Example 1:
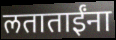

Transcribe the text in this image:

लताताईंना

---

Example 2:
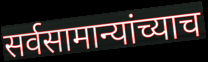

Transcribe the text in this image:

सर्वसामान्यांच्याच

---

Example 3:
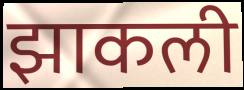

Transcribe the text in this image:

झाकली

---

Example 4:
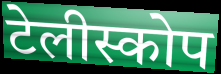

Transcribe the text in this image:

टेलीस्कोप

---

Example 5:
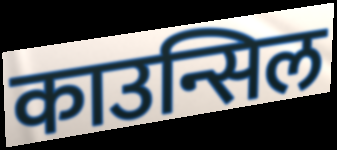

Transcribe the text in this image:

काउन्सिल